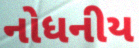
નોધનીય